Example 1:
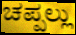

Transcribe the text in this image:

ಚಪ್ಪಲ್ಲು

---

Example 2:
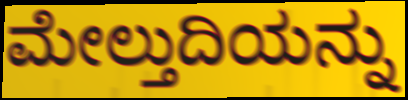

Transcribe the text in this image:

ಮೇಲ್ತುದಿಯನ್ನು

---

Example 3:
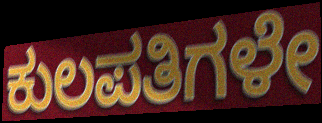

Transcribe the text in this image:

ಕುಲಪತಿಗಳೇ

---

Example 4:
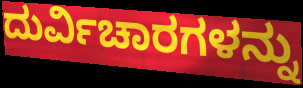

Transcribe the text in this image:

ದುರ್ವಿಚಾರಗಳನ್ನು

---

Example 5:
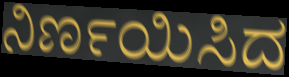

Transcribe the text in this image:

ನಿರ್ಣಯಿಸಿದ